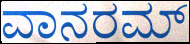
ವಾನರಮ್